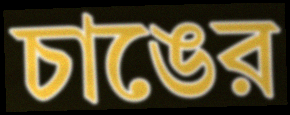
চাঙের